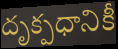
దృక్పధానికీ